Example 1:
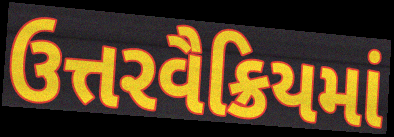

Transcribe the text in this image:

ઉત્તરવૈક્રિયમાં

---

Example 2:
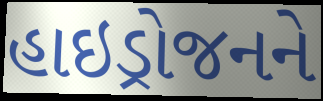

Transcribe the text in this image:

હાઇડ્રોજનને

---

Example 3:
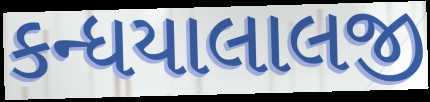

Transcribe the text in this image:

કન્ધયાલાલજી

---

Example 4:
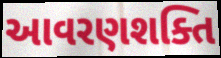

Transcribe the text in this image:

આવરણશક્તિ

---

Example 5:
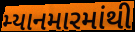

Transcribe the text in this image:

મ્યાનમારમાંથી